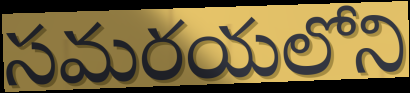
సమరయలోని